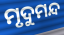
ମୃଦୁମନ୍ଦ